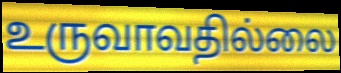
உருவாவதில்லை